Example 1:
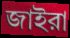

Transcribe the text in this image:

জাইরা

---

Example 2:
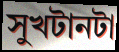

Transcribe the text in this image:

সুখটানটা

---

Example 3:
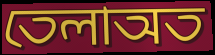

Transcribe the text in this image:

তেলাঅত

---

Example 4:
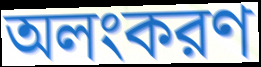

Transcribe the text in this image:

অলংকরণ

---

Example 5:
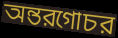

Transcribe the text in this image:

অন্তরগোচর